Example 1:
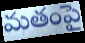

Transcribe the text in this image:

మతంపై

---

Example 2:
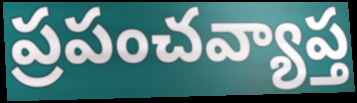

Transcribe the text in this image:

ప్రపంచవ్యాప్త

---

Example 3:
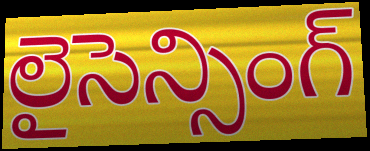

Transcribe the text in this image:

లైసెన్సింగ్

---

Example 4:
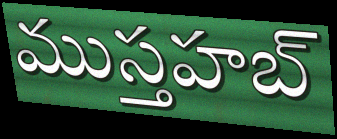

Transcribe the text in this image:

ముస్తహబ్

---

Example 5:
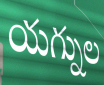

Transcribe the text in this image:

యగ్నుల